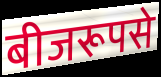
बीजरूपसे